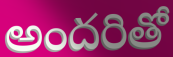
అందరితో